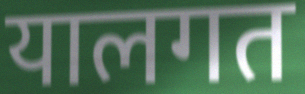
यालगत